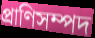
প্রাণিসম্পদ